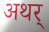
अथर्